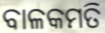
ବାଳକମତି